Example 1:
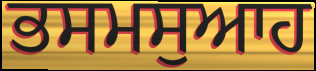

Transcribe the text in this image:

ਭਸਮਸੁਆਹ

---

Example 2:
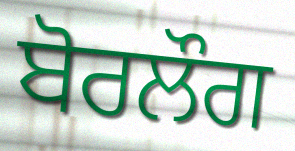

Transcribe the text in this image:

ਬੋਰਲੌਗ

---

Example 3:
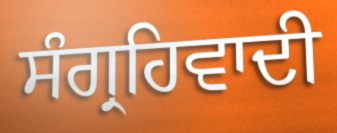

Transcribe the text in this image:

ਸੰਗ੍ਰਹਿਵਾਦੀ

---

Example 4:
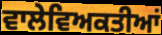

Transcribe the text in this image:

ਵਾਲੇਵਿਅਕਤੀਆਂ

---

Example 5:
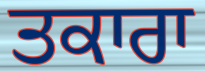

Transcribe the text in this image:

ਤਕਾਰਾ